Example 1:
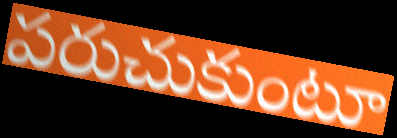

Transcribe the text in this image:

పరుచుకుంటూ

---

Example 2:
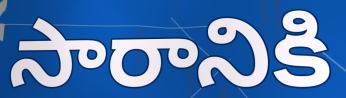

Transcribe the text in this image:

సారానికి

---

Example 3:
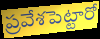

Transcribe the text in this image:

ప్రవేశపెట్టారో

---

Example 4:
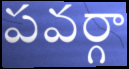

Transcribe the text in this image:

పవర్గా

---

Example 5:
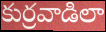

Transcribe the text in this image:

కుర్రవాడిలా